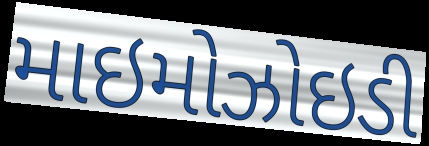
માઇમોઝોઇડી